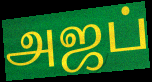
அஜப்